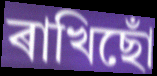
ৰাখিছোঁ